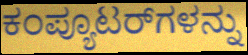
ಕಂಪ್ಯೂಟರ್‌ಗಳನ್ನು